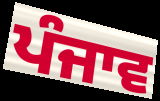
ਪੰਜਾਵ